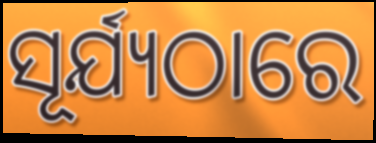
ସୂର୍ଯ୍ୟଠାରେ